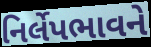
નિર્લેપભાવને